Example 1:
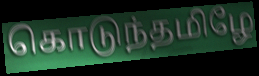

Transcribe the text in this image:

கொடுந்தமிழே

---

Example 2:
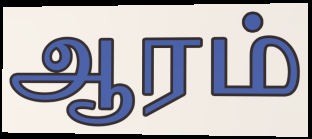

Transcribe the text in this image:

ஆரம்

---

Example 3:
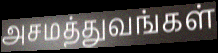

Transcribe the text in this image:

அசமத்துவங்கள்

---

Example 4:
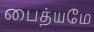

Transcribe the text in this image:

பைத்யமே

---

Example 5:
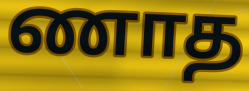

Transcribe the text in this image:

ணாத